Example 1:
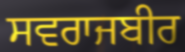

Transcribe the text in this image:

ਸਵਰਾਜਬੀਰ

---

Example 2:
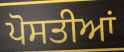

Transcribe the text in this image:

ਪੋਸਤੀਆਂ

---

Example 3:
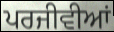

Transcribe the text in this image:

ਪਰਜੀਵੀਆਂ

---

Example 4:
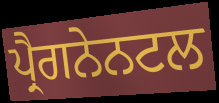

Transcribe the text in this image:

ਪ੍ਰੈਗਨੇਨਟਲ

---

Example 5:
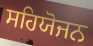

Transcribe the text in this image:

ਸਹਿਯੋਜਨ